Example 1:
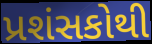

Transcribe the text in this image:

પ્રશંસકોથી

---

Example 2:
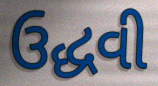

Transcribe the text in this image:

ઉદ્ધવી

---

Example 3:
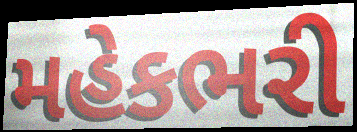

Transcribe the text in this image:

મહેકભરી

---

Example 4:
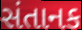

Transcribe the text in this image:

સંતાનક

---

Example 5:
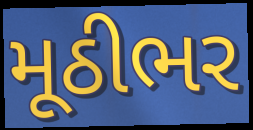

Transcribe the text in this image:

મૂઠીભર